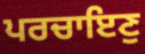
ਪਰਚਾਇਣੁ